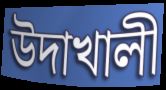
উদাখালী